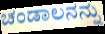
ಚಂಡಾಲನನ್ನು